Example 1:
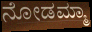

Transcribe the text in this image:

ನೋಡಮ್ಮಾ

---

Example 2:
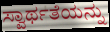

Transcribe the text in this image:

ಸ್ವಾರ್ಥತೆಯನ್ನು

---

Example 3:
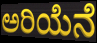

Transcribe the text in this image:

ಅರಿಯೆನೆ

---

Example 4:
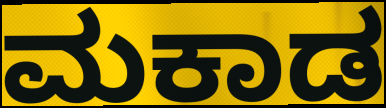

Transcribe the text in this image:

ಮಕಾಡ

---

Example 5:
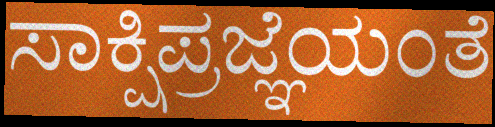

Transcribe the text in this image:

ಸಾಕ್ಷಿಪ್ರಜ್ಞೆಯಂತೆ